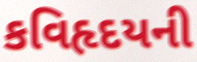
કવિહૃદયની